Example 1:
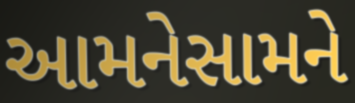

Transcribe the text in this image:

આમનેસામને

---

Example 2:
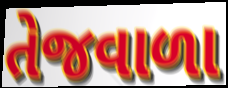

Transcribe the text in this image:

તેજવાળા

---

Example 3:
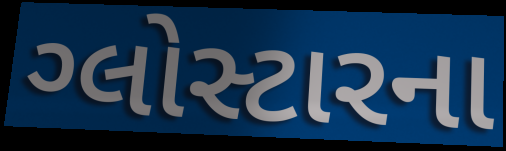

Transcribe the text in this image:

ગ્લોસ્ટારના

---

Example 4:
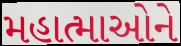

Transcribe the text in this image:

મહાત્માઓને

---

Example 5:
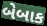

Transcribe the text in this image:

બેબાક